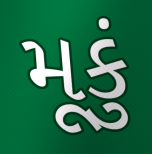
મૂકું